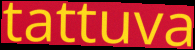
tattuva